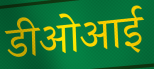
डीओआई